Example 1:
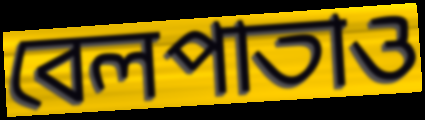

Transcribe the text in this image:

বেলপাতাও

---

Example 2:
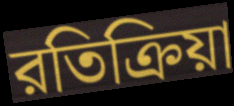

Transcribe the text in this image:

রতিক্রিয়া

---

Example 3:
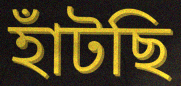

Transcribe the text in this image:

হাঁটছি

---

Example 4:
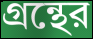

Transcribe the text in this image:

গ্রন্থের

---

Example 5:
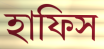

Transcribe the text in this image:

হাফিস